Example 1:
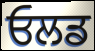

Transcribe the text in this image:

ਓਲਡ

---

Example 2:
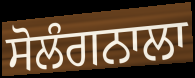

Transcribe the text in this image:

ਸੋਲੰਗਨਾਲਾ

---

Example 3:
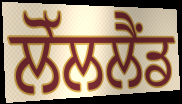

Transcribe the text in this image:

ਲੋੱਲਲੈਂਡ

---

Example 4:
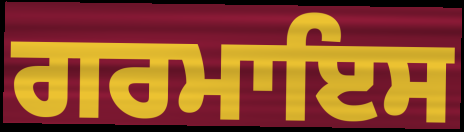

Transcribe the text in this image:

ਗਰਮਾਇਸ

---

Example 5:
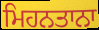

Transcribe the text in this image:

ਮਿਹਨਤਾਨਾ